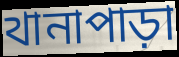
থানাপাড়া